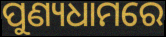
ପୁଣ୍ୟଧାମରେ